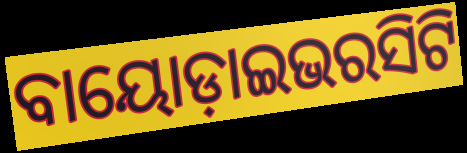
ବାୟୋଡ଼ାଇଭରସିଟି